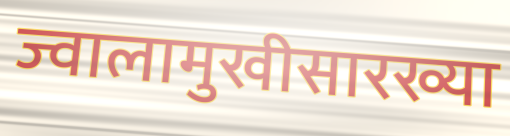
ज्वालामुखीसारख्या